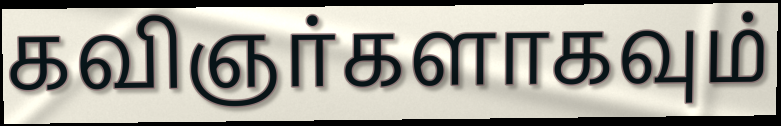
கவிஞர்களாகவும்